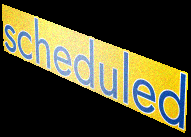
scheduled